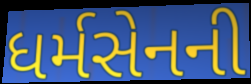
ધર્મસેનની